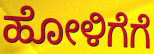
ಹೋಳಿಗೆಗೆ